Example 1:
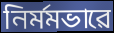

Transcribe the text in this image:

নিৰ্মমভাৱে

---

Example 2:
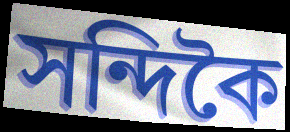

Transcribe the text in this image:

সন্দিকৈ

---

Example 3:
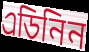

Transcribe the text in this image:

এডিনিন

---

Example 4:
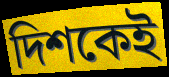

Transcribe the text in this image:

দিশকেই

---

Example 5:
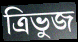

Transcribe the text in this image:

ত্ৰিভুজ